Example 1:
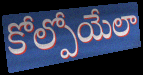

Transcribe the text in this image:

కోల్పోయేలా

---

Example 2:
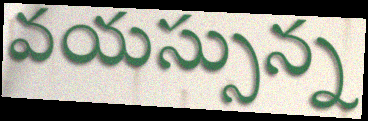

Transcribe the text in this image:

వయస్సున్న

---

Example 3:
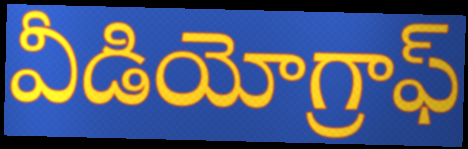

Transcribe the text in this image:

వీడియోగ్రాఫ్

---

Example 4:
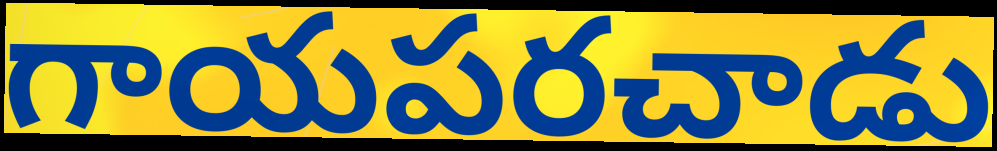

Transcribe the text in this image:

గాయపరచాడు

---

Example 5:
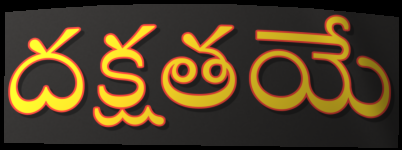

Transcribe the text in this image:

దక్షతయే